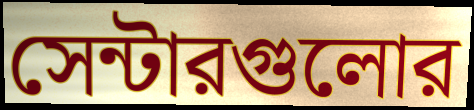
সেন্টারগুলোর